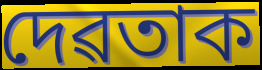
দেৱতাক